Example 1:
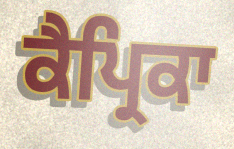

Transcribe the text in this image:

ਕੈਪ੍ਰਿਕਾ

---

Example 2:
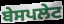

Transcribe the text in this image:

ਬੇਸਪਲੇਟ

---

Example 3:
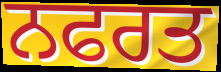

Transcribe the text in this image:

ਨਫਰਤ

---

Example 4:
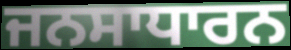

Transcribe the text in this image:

ਜਨਸਾਧਾਰਨ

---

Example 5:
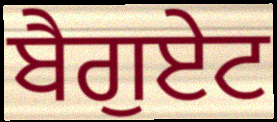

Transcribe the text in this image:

ਬੈਗੁਏਟ